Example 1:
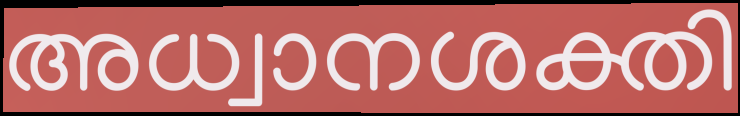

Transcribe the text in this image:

അധ്വാനശക്തി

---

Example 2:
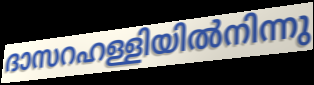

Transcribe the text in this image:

ദാസറഹള്ളിയിൽനിന്നു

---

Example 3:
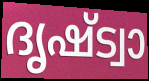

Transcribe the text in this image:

ദൃഷ്ട്വാ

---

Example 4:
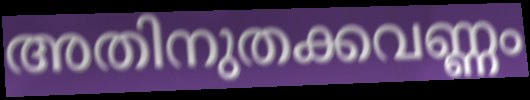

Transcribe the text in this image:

അതിനുതക്കവണ്ണം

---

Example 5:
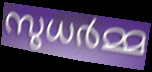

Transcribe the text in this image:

സുധർമ്മ